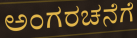
ಅಂಗರಚನೆಗೆ